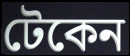
টেকেন